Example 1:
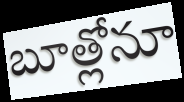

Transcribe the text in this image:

బూత్లోనూ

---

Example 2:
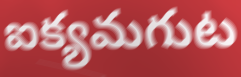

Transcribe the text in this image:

ఐక్యమగుట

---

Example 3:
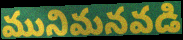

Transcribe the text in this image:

మునిమనవడి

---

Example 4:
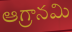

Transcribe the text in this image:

ఆగ్రానమి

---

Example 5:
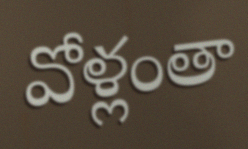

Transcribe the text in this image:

వోళ్లంతా